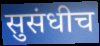
सुसंधीच